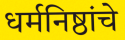
धर्मनिष्ठांचे